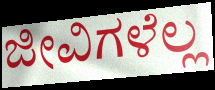
ಜೀವಿಗಳೆಲ್ಲ